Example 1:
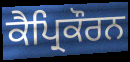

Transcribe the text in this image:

ਕੈਪ੍ਰਿਕੌਰਨ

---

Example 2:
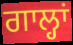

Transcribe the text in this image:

ਗਾਲ੍ਹਾਂ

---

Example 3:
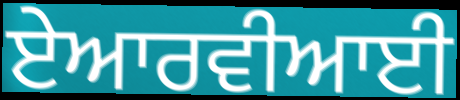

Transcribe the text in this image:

ਏਆਰਵੀਆਈ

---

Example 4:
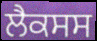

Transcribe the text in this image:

ਲੈਕਸਸ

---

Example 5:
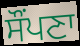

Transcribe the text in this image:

ਸੌਂਪਣਾ